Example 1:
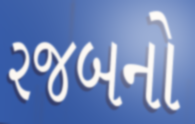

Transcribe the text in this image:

રજબનો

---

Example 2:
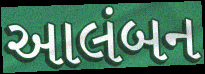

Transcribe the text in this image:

આલંબન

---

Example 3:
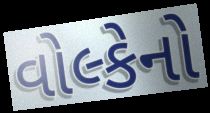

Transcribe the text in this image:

વોલ્કેનો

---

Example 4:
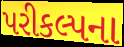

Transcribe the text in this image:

પરીકલ્પના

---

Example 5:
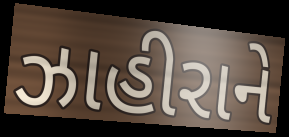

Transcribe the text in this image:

ઝાહીરાને